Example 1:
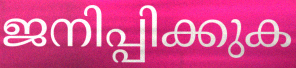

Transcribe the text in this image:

ജനിപ്പിക്കുക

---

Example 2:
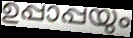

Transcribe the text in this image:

ഉപ്പാപ്പയും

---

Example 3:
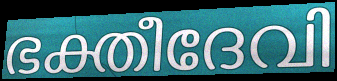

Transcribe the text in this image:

ഭക്തീദേവി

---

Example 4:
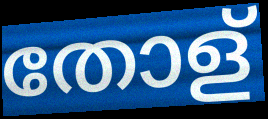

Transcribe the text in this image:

തോള്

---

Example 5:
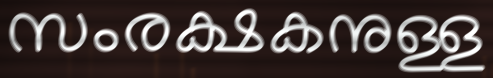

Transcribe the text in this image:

സംരക്ഷകനുള്ള